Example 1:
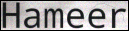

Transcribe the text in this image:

Hameer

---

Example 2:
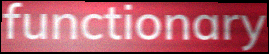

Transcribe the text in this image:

functionary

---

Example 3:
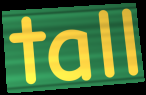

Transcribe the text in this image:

tall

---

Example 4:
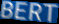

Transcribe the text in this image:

BERT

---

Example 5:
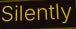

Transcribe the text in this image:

Silently